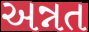
અન્નત